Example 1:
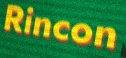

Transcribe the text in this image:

Rincon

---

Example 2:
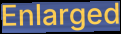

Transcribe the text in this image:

Enlarged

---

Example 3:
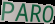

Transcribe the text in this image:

PARO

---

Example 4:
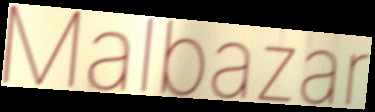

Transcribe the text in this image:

Malbazar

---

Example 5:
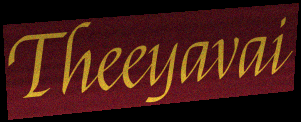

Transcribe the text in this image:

Theeyavai